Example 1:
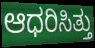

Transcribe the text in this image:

ಆಧರಿಸಿತ್ತು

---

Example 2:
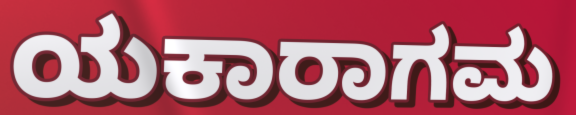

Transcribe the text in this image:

ಯಕಾರಾಗಮ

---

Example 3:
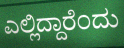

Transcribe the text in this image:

ಎಲ್ಲಿದ್ದಾರೆಂದು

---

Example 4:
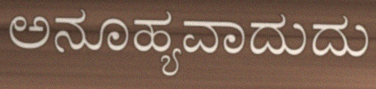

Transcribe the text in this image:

ಅನೂಹ್ಯವಾದುದು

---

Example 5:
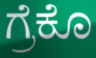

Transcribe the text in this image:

ಗ್ರೆಕೊ